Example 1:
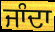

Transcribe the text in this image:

ਜਾੰਦਾ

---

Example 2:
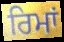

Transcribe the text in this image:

ਰਿਮਾਂ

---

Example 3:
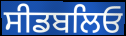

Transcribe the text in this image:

ਸੀਡਬਲਿਓ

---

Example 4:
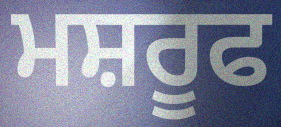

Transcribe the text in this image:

ਮਸ਼ਰੂਫ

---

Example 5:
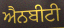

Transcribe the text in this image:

ਐਨਬੀਟੀ